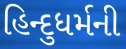
હિન્દુધર્મની